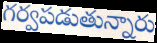
గర్వపడుతున్నారు